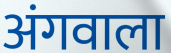
अंगवाला